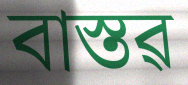
বাস্তৱ